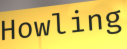
Howling